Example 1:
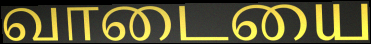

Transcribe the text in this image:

வாடையை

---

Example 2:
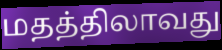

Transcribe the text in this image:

மதத்திலாவது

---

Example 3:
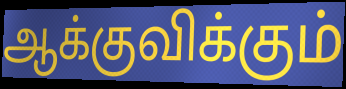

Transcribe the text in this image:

ஆக்குவிக்கும்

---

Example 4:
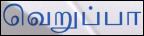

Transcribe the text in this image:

வெறுப்பா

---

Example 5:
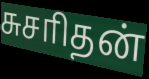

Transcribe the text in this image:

சுசரிதன்